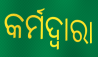
କର୍ମଦ୍ୱାରା